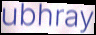
ubhray